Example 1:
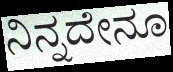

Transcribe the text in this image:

ನಿನ್ನದೇನೂ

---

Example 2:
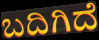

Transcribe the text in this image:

ಬದಿಗಿದೆ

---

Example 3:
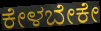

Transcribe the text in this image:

ಕೇಳಬೇಕೇ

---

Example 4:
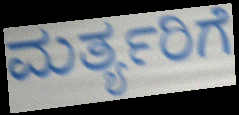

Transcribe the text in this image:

ಮರ್ತ್ಯರಿಗೆ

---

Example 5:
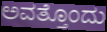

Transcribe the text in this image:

ಅವತ್ತೊಂದು